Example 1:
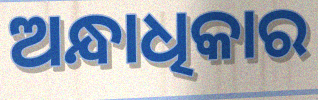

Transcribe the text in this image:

ଅନ୍ଧାଧିକାର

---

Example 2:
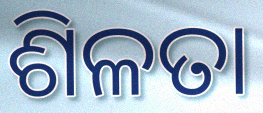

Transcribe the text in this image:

ଶିଳତା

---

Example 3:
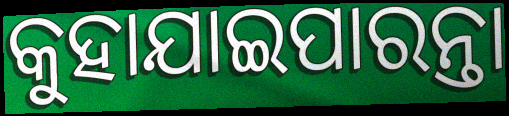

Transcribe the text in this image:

କୁହାଯାଇପାରନ୍ତା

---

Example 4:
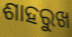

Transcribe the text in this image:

ଶାହରୁଖ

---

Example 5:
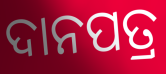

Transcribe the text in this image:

ଦାନପତ୍ର